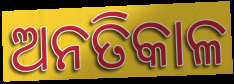
ଅନତିକାଳ